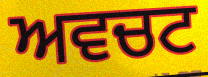
ਅਵਚਟ